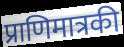
प्राणिमात्रकी